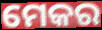
ମେକର